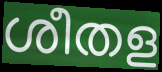
ശീതള